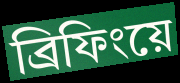
ব্রিফিংয়ে